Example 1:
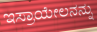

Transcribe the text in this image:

ಇಸ್ರಾಯೇಲನನ್ನು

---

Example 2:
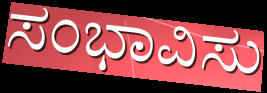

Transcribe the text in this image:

ಸಂಭಾವಿಸು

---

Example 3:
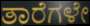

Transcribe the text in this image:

ತಾರೆಗಳೇ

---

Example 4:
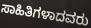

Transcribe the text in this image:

ಸಾಹಿತಿಗಳಾದವರು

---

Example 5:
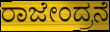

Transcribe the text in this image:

ರಾಜೇಂದ್ರನೆ